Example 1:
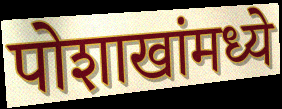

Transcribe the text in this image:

पोशाखांमध्ये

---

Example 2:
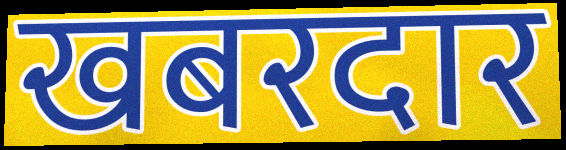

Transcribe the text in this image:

खबरदार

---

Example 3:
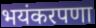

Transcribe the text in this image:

भयंकरपणा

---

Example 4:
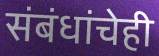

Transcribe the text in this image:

संबंधांचेही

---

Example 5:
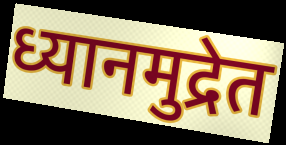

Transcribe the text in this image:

ध्यानमुद्रेत